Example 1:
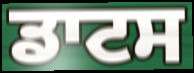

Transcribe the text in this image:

ਡਾਟਸ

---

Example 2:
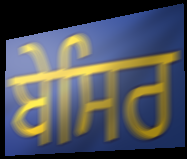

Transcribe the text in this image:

ਬੇਸਿਰ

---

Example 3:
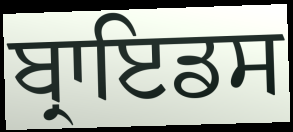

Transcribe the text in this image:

ਬ੍ਰਾਇਡਸ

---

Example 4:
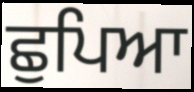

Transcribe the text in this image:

ਛੁਪਿਆ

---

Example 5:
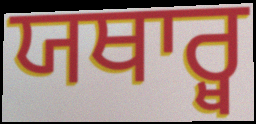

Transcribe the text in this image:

ਯਥਾਰ੍ਥ